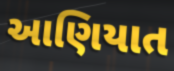
આણિયાત